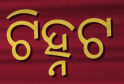
ଟିହ୍ନଟ